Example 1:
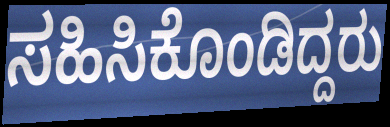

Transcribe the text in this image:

ಸಹಿಸಿಕೊಂಡಿದ್ದರು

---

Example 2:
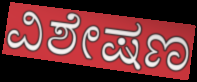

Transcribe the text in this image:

ವಿಶೇಷಣ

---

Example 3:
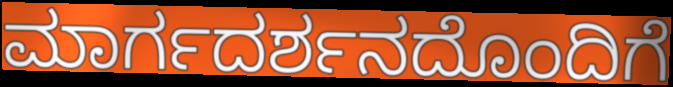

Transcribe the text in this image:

ಮಾರ್ಗದರ್ಶನದೊಂದಿಗೆ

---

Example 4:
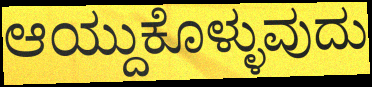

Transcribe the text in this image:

ಆಯ್ದುಕೊಳ್ಳುವುದು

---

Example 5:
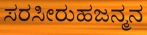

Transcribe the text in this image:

ಸರಸೀರುಹಜನ್ಮನ